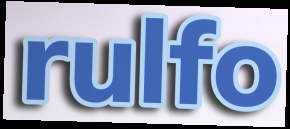
rulfo